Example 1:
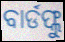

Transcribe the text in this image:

ବାର୍ଡଫ୍ଲୁ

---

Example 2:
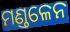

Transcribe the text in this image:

ମଣ୍ଡଳେନ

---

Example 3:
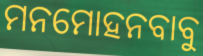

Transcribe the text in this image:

ମନମୋହନବାବୁ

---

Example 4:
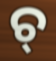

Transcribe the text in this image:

ଚ୍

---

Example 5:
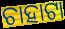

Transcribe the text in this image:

ଚାହାଟା